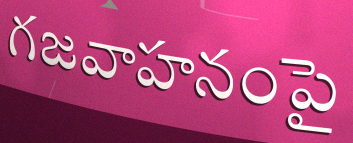
గజవాహనంపై